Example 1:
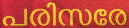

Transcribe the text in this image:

പരിസരേ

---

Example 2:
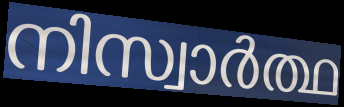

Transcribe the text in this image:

നിസ്വാർത്ഥ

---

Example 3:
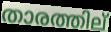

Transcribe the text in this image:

താരത്തില്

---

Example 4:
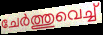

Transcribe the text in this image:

ചേർത്തുവെച്ച്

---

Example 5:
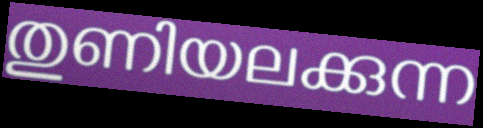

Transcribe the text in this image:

തുണിയലക്കുന്ന